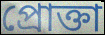
প্রোক্তা